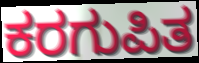
ಕರಗುಪಿತ